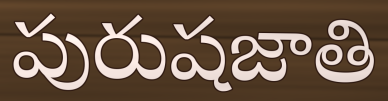
పురుషజాతి